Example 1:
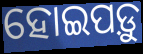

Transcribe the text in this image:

ହୋଇପଡ଼ୁ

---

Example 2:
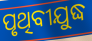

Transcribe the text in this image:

ପୃଥିବୀଯୁଦ୍ଧ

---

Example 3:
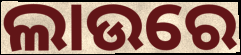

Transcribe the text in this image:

ଲାଉରେ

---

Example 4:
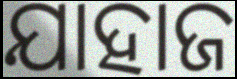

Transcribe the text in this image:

ଯାହାଜ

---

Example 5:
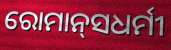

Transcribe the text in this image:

ରୋମାନ୍‍ସଧର୍ମୀ